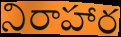
నిరాహార